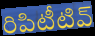
రిపిటీటివ్